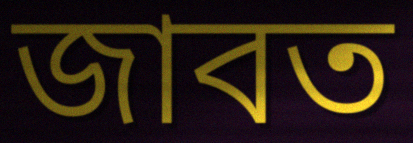
জাবত